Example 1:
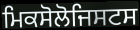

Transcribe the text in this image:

ਮਿਕਸੋਲੋਜਿਸਟਸ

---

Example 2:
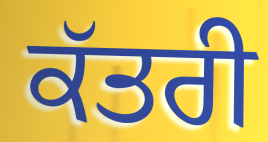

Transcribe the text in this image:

ਕੱਤਰੀ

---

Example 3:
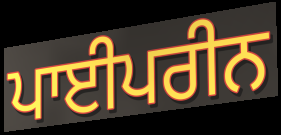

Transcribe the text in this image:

ਪਾਈਪਰੀਨ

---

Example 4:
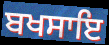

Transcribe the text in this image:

ਬਖਸਾਇ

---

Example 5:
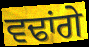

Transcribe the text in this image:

ਵਢਾਂਗੇ